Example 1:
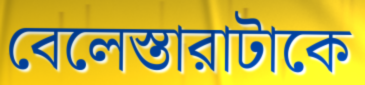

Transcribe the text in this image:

বেলেস্তারাটাকে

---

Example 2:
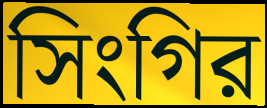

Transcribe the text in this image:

সিংগির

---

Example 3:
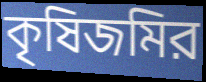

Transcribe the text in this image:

কৃষিজমির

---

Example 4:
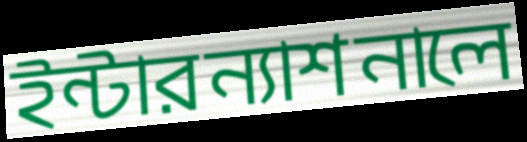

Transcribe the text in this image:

ইন্টারন্যাশনালে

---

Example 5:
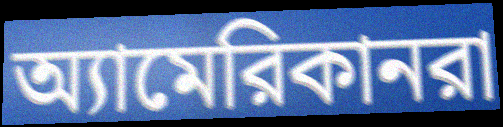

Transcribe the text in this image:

অ্যামেরিকানরা